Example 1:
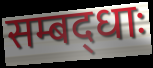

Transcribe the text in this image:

सम्बद्धाः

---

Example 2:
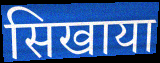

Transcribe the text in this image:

सिखाया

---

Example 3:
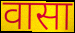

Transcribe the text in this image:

वासा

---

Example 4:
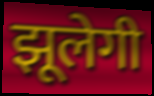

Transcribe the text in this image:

झूलेगी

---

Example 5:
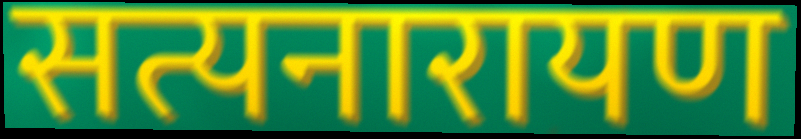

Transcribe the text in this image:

सत्यनारायण